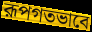
রূপগতভাবে